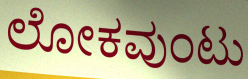
ಲೋಕವುಂಟು